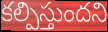
కల్పిస్తుందని